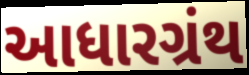
આધારગ્રંથ